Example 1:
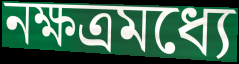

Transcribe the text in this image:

নক্ষত্রমধ্যে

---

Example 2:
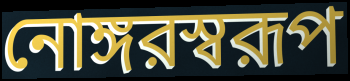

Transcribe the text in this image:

নোঙ্গরস্বরূপ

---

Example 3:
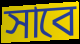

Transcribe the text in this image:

সাবে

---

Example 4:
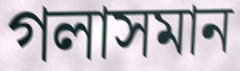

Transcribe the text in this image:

গলাসমান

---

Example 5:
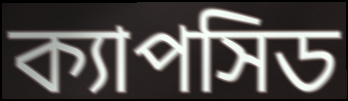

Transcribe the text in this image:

ক্যাপসিড